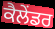
ਕੈਲੇਂਡਰ